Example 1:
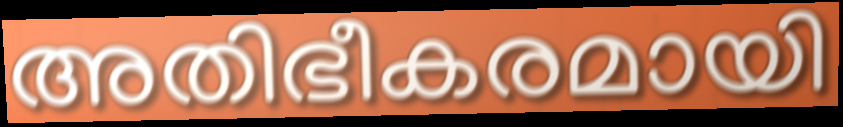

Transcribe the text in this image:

അതിഭീകരമായി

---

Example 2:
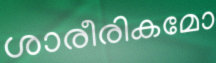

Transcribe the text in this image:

ശാരീരികമോ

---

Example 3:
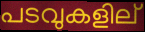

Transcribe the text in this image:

പടവുകളില്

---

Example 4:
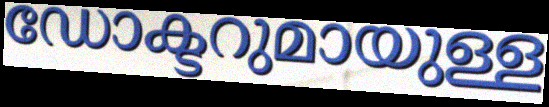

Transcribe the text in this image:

ഡോക്ടറുമായുള്ള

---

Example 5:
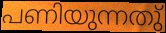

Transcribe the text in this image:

പണിയുന്നതു്